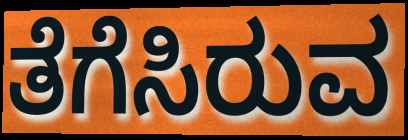
ತೆಗೆಸಿರುವ